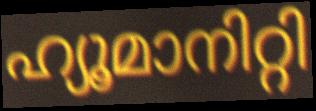
ഹ്യൂമാനിറ്റി